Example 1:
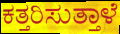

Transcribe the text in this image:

ಕತ್ತರಿಸುತ್ತಾಳೆ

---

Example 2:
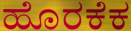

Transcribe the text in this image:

ಹೊರಕೆಕ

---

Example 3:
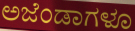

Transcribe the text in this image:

ಅಜೆಂಡಾಗಳೂ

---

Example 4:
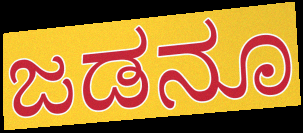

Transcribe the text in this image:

ಜಡನೂ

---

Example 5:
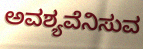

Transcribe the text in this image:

ಅವಶ್ಯವೆನಿಸುವ